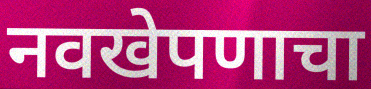
नवखेपणाचा